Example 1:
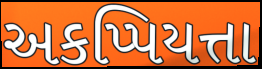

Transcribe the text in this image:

અકપ્પિયત્તા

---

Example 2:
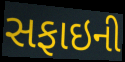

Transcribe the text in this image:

સફાઇની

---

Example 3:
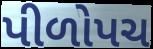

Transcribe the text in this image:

પીળોપચ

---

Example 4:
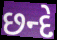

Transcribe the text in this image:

છન્દે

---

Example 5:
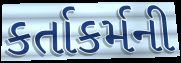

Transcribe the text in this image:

કર્તાકર્મની